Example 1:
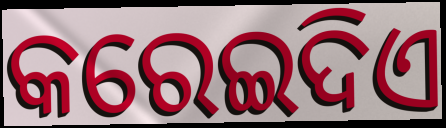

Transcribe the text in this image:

କରେଇଦିଏ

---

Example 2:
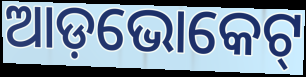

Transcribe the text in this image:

ଆଡ଼ଭୋକେଟ୍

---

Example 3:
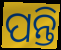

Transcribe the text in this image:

ପନ୍ତି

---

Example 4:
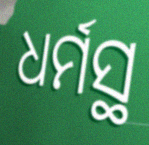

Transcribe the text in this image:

ଧର୍ମସ୍ଥ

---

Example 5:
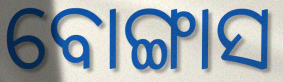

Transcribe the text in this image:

ବୋଙ୍ଗାସ